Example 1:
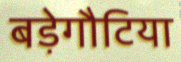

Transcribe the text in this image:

बड़ेगौटिया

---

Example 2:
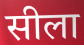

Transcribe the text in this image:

सीला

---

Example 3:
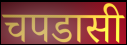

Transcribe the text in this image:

चपडासी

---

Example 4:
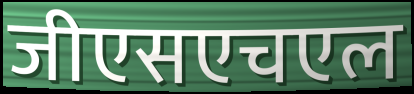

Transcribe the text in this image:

जीएसएचएल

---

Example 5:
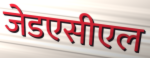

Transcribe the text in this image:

जेडएसीएल